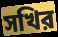
সখির